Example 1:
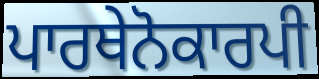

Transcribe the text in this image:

ਪਾਰਥੇਨੋਕਾਰਪੀ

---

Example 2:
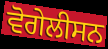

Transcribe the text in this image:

ਵੋਗੇਲੀਸਨ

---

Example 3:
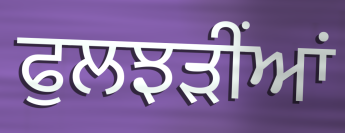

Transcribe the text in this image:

ਫੁਲਝੜੀਂਆਂ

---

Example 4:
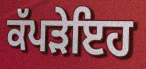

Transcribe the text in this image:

ਕੱਪੜੇਇਹ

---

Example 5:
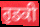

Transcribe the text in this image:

ਰੁਡਕੀ